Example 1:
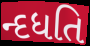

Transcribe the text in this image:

ન્દધતિ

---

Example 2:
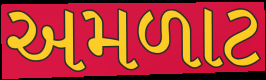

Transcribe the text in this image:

અમળાટ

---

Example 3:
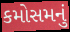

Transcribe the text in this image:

કમોસમનું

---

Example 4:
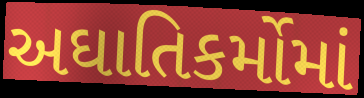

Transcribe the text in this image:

અઘાતિકર્મોમાં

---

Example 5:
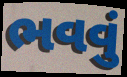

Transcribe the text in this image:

ભવવું